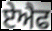
ਏਐਫ